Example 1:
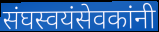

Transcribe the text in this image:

संघस्वयंसेवकांनी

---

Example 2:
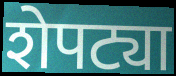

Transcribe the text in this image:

शेपट्या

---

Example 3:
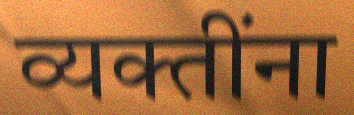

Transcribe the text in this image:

व्यक्तींना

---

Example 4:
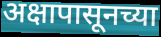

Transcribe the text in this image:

अक्षापासूनच्या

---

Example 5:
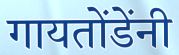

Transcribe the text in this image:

गायतोंडेंनी